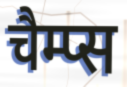
चैम्प्स